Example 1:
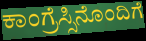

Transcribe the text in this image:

ಕಾಂಗ್ರೆಸ್ಸಿನೊಂದಿಗೆ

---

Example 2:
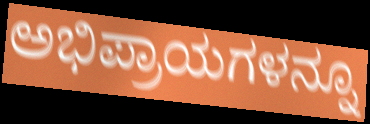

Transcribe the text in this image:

ಅಭಿಪ್ರಾಯಗಳನ್ನೂ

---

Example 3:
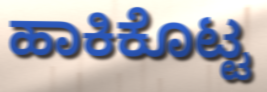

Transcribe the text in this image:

ಹಾಕಿಕೊಟ್ಟ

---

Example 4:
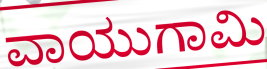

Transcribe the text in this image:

ವಾಯುಗಾಮಿ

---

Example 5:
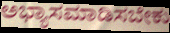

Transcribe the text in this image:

ಅಭ್ಯಾಸಮಾಡಿಸಬೇಕು